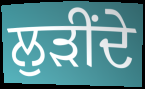
ਲੁੜੀਂਦੇ